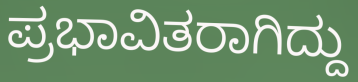
ಪ್ರಭಾವಿತರಾಗಿದ್ದು